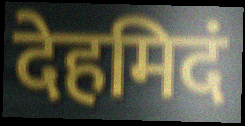
देहमिदं